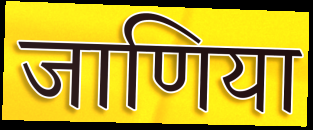
जाणिया